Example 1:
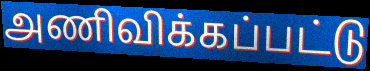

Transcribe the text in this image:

அணிவிக்கப்பட்டு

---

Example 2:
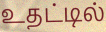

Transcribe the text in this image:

உதட்டில்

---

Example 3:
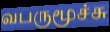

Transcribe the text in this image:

வபருமூச்சு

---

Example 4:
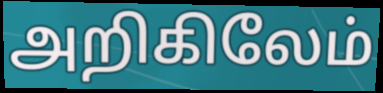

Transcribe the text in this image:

அறிகிலேம்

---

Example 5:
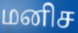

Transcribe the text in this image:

மனிச